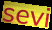
sevi